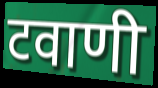
टवाणी